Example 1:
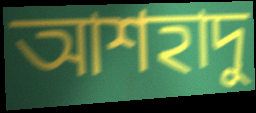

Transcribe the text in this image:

আশহাদু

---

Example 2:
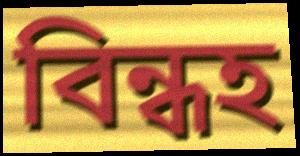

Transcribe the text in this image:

বিন্ধহ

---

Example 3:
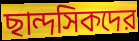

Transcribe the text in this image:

ছান্দসিকদের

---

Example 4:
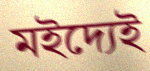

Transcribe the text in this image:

মইদ্যেই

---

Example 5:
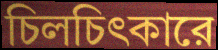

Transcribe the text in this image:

চিলচিৎকারে